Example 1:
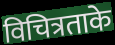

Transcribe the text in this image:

विचित्रताके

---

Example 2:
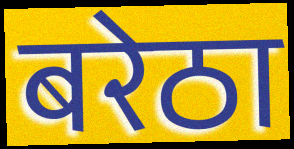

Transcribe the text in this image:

बरेठा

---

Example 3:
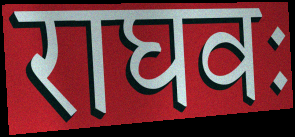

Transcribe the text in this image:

राघवः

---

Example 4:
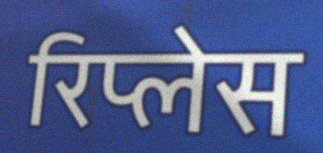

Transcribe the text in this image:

रिप्लेस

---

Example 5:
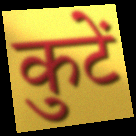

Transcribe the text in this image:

कुटें